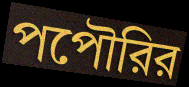
পপৌরির